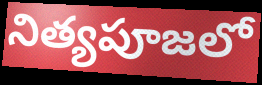
నిత్యపూజలో